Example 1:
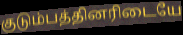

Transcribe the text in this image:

குடும்பத்தினரிடையே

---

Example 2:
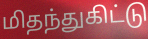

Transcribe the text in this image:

மிதந்துகிட்டு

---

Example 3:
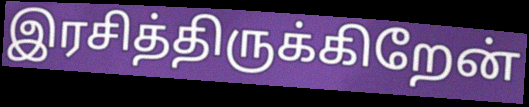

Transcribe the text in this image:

இரசித்திருக்கிறேன்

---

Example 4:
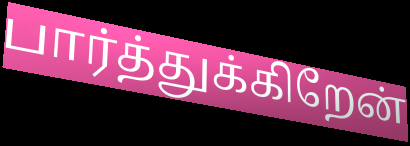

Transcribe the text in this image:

பார்த்துக்கிறேன்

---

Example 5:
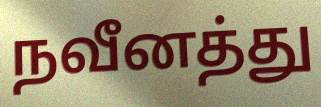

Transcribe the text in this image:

நவீனத்து